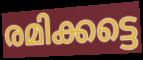
രമിക്കട്ടെ